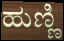
ಹುಣ್ಣಿ